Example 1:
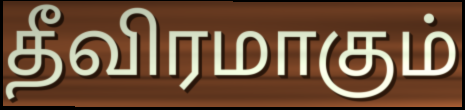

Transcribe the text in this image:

தீவிரமாகும்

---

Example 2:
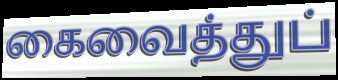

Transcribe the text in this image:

கைவைத்துப்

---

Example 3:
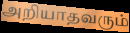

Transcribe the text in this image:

அறியாதவரும்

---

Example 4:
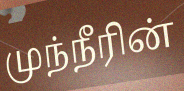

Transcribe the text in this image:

முந்நீரின்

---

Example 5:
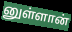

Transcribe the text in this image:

னுள்ளான்